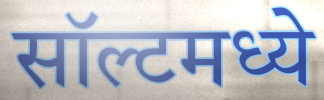
सॉल्टमध्ये